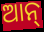
ଆନ୍